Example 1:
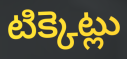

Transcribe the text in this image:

టిక్కెట్లు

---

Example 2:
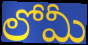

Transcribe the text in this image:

లోమీ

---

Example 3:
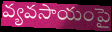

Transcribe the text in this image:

వ్యవసాయంపై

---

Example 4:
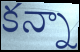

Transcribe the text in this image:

కన్నా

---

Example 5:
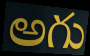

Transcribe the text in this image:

అగు